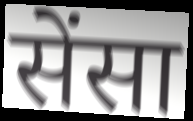
सेंसा